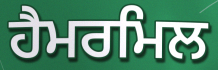
ਹੈਮਰਮਿਲ